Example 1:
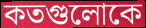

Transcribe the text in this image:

কতগুলোকে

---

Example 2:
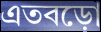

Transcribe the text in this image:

এতবড়ো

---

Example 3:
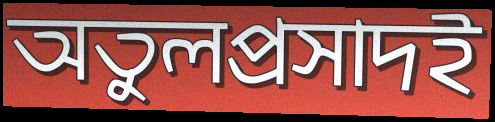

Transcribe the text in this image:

অতুলপ্রসাদই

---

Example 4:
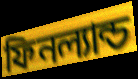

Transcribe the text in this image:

ফিনল্যান্ড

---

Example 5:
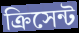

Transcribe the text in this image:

ক্রিসেন্ট